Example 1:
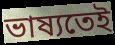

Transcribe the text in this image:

ভাষ্যতেই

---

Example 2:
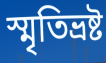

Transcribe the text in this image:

স্মৃতিভ্রষ্ট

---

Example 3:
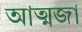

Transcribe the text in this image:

আত্মজা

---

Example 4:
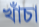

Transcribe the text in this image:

খাঁচা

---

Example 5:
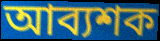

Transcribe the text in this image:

আব্যশক